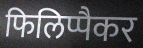
फिलिप्पैकर